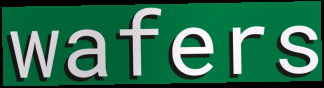
wafers